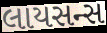
લાયસન્સ